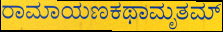
ರಾಮಾಯಣಕಥಾಮೃತಮ್